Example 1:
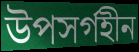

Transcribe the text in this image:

উপসর্গহীন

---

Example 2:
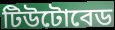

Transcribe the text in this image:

টিউটোবেড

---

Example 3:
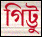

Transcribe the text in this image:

গিট্টু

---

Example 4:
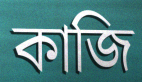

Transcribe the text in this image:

কাজি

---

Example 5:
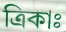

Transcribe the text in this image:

ত্রিকাঃ